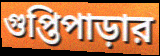
গুপ্তিপাড়ার